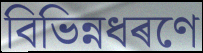
বিভিন্নধৰণে